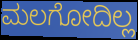
ಮಲಗೋದಿಲ್ಲ